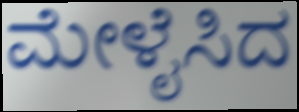
ಮೇಳೈಸಿದ